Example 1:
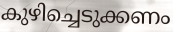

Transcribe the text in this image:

കുഴിച്ചെടുക്കണം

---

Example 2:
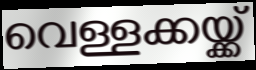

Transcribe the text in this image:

വെള്ളക്കയ്ക്ക്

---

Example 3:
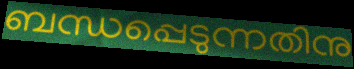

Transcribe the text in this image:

ബന്ധപ്പെടുന്നതിനു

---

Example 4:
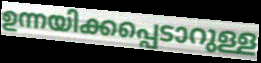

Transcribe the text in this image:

ഉന്നയിക്കപ്പെടാറുള്ള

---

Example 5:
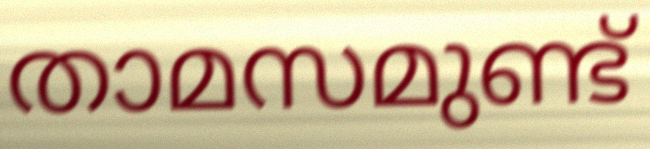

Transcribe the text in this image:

താമസമുണ്ട്